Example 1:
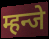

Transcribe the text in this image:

म्हन्जे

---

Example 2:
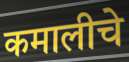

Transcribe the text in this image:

कमालीचे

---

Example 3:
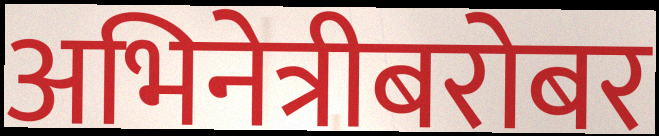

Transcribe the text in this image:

अभिनेत्रीबरोबर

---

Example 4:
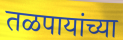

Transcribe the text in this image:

तळपायांच्या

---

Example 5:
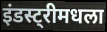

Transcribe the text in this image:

इंडस्ट्रीमधला